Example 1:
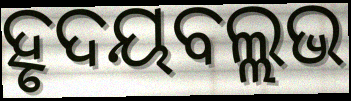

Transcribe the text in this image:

ହୃଦୟବଲ୍ଲଭ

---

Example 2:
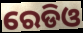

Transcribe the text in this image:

ରେଡିଓ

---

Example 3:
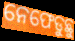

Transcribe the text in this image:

ନେଫେଡୁଛୁ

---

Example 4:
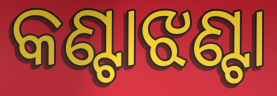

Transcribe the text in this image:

କଣ୍ଟାଝଣ୍ଟା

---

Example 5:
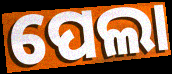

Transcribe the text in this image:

ପେଲା